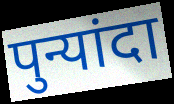
पुन्यांदा